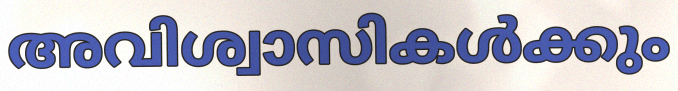
അവിശ്വാസികൾക്കും